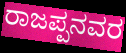
ರಾಜಪ್ಪನವರ